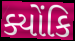
ક્યોંકિ